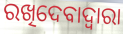
ରଖିଦେବାଦ୍ୱାରା